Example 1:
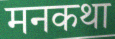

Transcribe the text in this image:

मनकथा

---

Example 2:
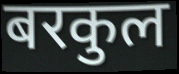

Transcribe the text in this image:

बरकुल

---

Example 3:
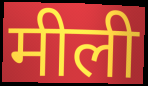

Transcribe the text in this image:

मीली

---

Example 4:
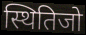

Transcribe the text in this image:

स्थितिजो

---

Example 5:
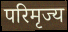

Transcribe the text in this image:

परिमृज्य